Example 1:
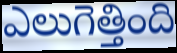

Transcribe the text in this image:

ఎలుగెత్తింది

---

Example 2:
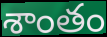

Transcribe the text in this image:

శాంతం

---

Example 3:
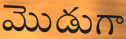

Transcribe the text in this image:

మొడుగా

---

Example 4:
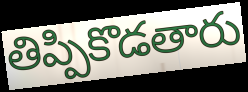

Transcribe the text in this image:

తిప్పికొడతారు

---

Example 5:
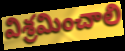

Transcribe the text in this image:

విశ్రమించాలి